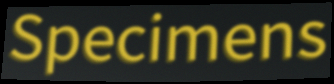
Specimens